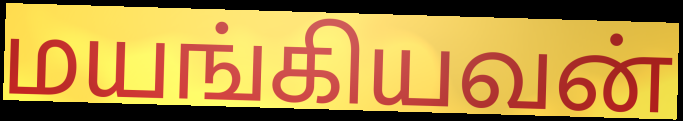
மயங்கியவன்